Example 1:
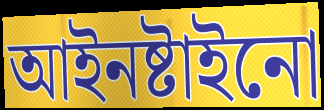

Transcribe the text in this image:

আইনষ্টাইনো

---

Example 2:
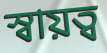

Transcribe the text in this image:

স্বায়ত্ব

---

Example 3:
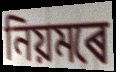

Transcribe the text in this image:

নিয়মৰে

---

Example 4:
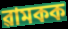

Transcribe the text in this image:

ৱামকক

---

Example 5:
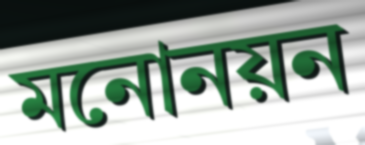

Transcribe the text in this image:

মনোনয়ন